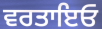
ਵਰਤਾਇਓ